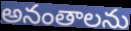
అనంతాలను